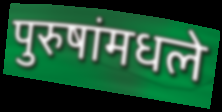
पुरुषांमधले